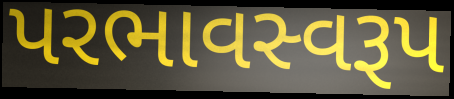
પરભાવસ્વરૂપ